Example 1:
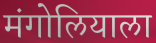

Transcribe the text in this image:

मंगोलियाला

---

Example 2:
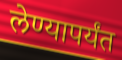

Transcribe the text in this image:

लेण्यापर्यंत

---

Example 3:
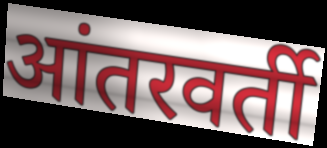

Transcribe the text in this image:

आंतरवर्ती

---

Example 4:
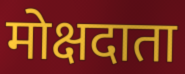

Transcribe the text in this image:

मोक्षदाता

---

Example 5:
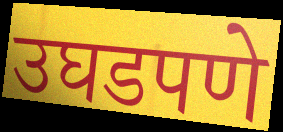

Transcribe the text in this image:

उघडपणे